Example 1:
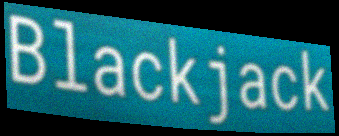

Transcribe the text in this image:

Blackjack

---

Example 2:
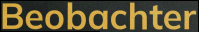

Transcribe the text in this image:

Beobachter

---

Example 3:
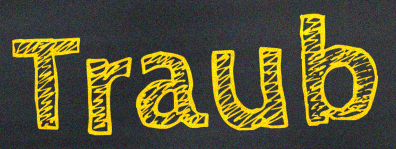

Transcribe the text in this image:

Traub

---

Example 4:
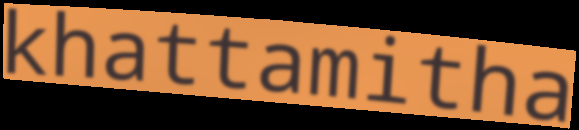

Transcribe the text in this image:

khattamitha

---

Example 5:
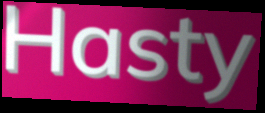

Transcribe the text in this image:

Hasty